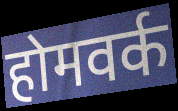
होमवर्क